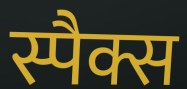
स्पैक्स